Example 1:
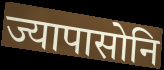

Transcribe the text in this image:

ज्यापासोनि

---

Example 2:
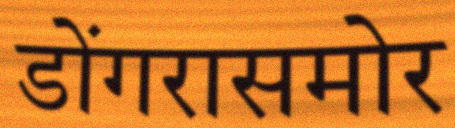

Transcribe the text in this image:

डोंगरासमोर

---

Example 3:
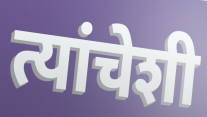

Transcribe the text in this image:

त्यांचेशी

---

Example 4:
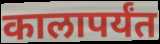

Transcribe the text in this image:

कालापर्यंत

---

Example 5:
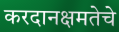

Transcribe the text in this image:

करदानक्षमतेचे